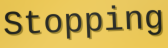
Stopping